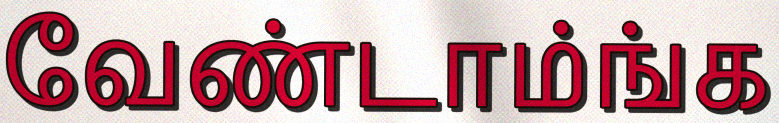
வேண்டாம்ங்க